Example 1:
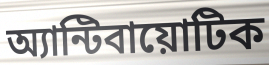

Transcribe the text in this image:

অ্যান্টিবায়োটিক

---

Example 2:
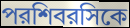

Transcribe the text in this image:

পরশিবরসিকে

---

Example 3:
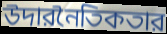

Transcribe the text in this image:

উদারনৈতিকতার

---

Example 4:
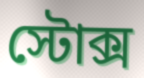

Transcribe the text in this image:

স্টোক্স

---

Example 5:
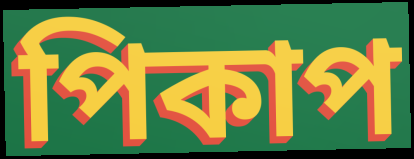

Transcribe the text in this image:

পিকাপ